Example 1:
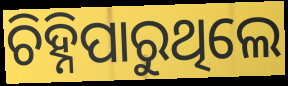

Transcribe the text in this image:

ଚିହ୍ନିପାରୁଥିଲେ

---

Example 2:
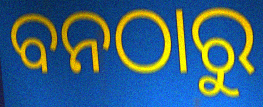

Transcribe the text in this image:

ବନଠାରୁ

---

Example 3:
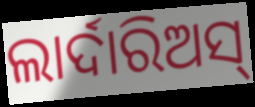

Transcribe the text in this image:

ଲାର୍ଦାରିଅସ୍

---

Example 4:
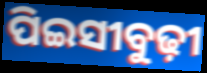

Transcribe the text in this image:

ପିଇସୀବୁଢ଼ୀ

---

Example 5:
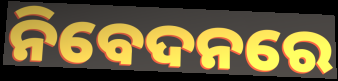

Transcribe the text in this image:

ନିବେଦନରେ